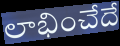
లాభించేదే